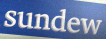
sundew